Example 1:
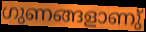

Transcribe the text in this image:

ഗുണങ്ങളാണു്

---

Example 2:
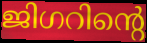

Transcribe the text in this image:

ജിഗറിന്റെ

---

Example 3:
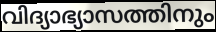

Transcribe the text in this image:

വിദ്യാഭ്യാസത്തിനും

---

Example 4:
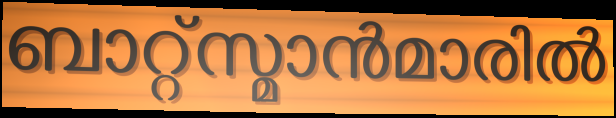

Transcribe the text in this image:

ബാറ്റ്സ്മാൻമാരിൽ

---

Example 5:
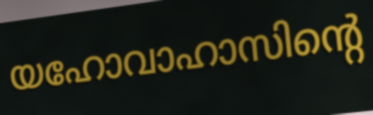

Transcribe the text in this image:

യഹോവാഹാസിന്റെ